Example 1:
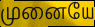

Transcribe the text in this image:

முனையே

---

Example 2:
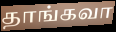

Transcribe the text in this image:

தாங்கவா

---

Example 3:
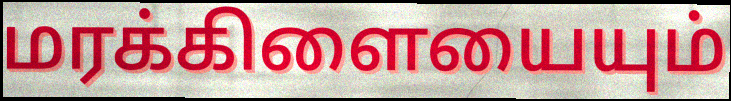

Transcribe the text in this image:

மரக்கிளையையும்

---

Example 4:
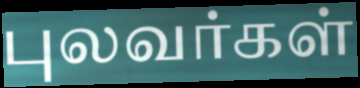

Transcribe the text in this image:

புலவர்கள்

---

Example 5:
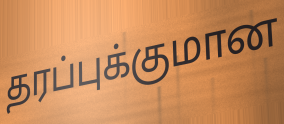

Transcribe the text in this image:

தரப்புக்குமான